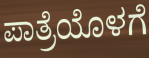
ಪಾತ್ರೆಯೊಳಗೆ